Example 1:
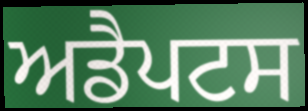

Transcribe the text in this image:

ਅਡੈਪਟਸ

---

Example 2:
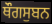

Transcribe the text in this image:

ਥੌਗਸੁਬਨ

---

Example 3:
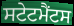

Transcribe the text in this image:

ਸਟੇਟਮੈਂਟਸ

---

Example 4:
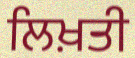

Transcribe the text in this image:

ਲਿਖ਼ਤੀ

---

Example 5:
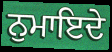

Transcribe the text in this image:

ਨੁਮਾਇਦੇ